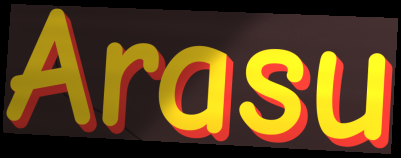
Arasu